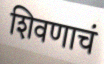
शिवणाचं